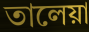
তালেয়া